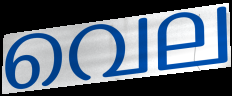
വെല